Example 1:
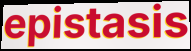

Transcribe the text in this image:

epistasis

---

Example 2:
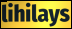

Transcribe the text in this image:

lihilays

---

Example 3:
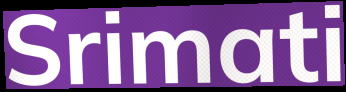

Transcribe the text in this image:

Srimati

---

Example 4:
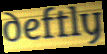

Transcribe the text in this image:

deftly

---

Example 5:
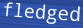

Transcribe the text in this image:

fledged